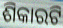
ଶିକାରଟି